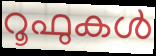
റൂഫുകൾ